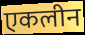
एकलीन